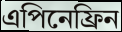
এপিনেফ্রিন